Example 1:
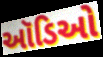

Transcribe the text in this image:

ઑડિઓ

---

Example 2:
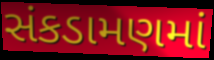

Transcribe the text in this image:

સંકડામણમાં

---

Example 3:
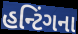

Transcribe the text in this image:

હન્ટિંગના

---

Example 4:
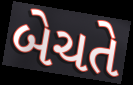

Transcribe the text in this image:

બેચતે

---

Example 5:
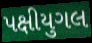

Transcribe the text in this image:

પક્ષીયુગલ